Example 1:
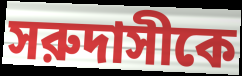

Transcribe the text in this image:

সরুদাসীকে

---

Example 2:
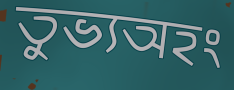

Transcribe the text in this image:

তুভ্যঅহং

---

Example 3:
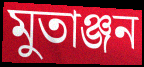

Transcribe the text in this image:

মুতাঞ্জন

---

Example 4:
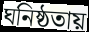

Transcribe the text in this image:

ঘনিষ্ঠতায়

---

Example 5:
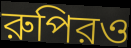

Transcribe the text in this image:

রুপিরও